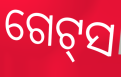
ଗେଟ୍‌ସ